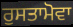
ਰੁਸਤਾਮੋਵਾ